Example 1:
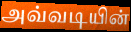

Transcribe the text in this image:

அவ்வடியின்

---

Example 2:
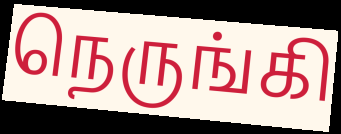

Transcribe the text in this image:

நெருங்கி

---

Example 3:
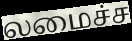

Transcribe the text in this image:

லமைச்ச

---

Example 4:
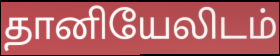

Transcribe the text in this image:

தானியேலிடம்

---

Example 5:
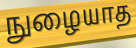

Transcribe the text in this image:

நுழையாத